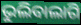
ଭୁଲିବାଲାଗି